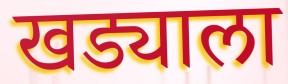
खड्याला